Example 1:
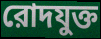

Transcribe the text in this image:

রোদযুক্ত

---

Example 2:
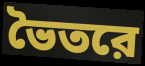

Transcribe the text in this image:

ভৈতরে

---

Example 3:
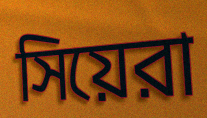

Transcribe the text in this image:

সিয়েরা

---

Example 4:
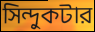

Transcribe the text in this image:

সিন্দুকটার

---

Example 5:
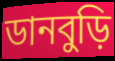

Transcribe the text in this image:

ডানবুড়ি